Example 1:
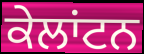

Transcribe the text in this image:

ਕੇਲਾਂਟਨ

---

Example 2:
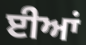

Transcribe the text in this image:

ਈਆਂ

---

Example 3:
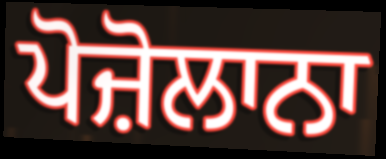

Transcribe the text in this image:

ਪੋਜ਼ੋਲਾਨਾ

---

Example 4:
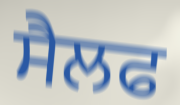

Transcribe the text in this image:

ਸੈਲਫ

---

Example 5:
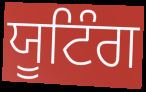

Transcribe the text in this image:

ਯੂਟਿੰਗ